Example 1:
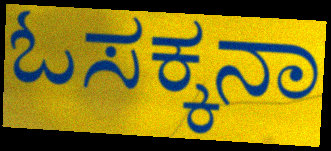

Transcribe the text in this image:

ಓಸಕ್ಕನಾ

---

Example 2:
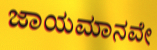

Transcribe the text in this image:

ಜಾಯಮಾನವೇ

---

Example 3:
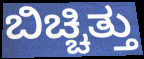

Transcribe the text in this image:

ಬಿಚ್ಚಿತ್ತು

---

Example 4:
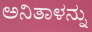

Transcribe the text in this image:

ಅನಿತಾಳನ್ನು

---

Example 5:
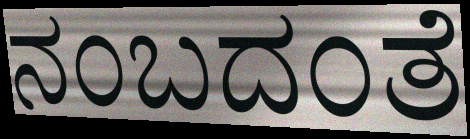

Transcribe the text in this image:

ನಂಬದಂತೆ